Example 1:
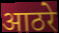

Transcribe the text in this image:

आठरे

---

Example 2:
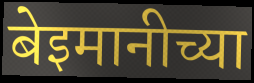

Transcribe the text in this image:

बेइमानीच्या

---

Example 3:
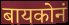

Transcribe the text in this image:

बायकोनं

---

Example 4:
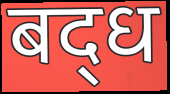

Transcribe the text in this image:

बद्ध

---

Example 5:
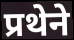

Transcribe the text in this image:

प्रथेने